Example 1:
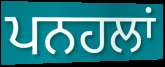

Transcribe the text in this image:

ਪਨਹਲਾਂ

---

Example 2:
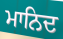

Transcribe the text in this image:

ਮਾਨਿਦ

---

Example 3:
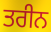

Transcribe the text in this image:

ਤਰੀਨ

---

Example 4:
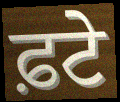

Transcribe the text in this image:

ਫ਼ਟੇ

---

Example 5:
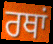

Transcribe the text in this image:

ਰਥਾਂ